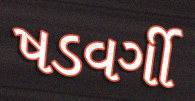
ષડવર્ગી